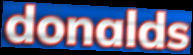
donalds